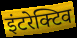
इंटरेक्टिव